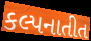
કલ્પનાતીત